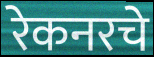
रेकनरचे